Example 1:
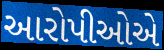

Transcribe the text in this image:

આરોપીઓએ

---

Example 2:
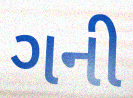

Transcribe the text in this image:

ગની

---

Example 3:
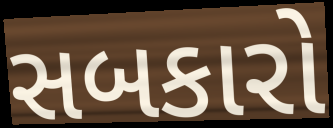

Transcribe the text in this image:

સબકારો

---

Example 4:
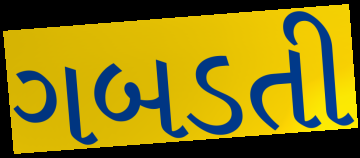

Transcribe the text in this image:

ગબડતી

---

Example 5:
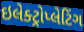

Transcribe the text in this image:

ઇલેક્ટ્રોપ્લેટિંગ